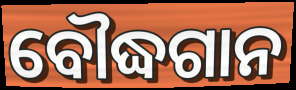
ବୌଦ୍ଧଗାନ